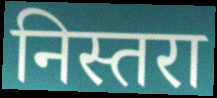
निस्तरा